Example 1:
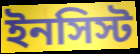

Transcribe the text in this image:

ইনসিস্ট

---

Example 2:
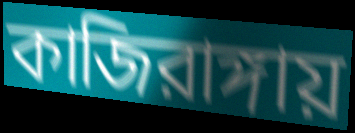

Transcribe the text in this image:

কাজিরাঙ্গায়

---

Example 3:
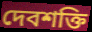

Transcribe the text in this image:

দেবশক্তি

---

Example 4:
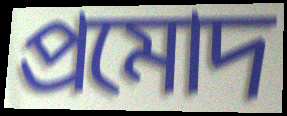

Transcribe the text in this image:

প্রমোদ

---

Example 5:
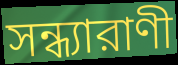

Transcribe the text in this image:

সন্ধ্যারাণী